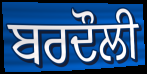
ਬਰਦੌਲੀ